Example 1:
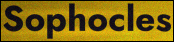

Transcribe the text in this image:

Sophocles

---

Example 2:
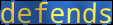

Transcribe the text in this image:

defends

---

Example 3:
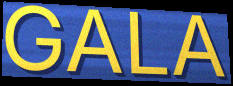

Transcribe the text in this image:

GALA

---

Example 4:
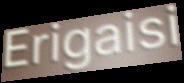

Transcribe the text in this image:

Erigaisi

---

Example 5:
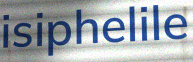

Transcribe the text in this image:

isiphelile